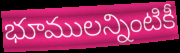
భూములన్నింటికీ